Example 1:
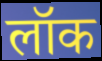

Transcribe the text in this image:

लॉक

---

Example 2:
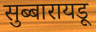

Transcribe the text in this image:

सुब्बारायडू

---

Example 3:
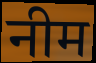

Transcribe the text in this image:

नीम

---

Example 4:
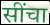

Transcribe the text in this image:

सींचा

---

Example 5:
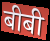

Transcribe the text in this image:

बीबी